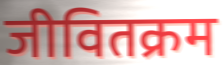
जीवितक्रम